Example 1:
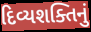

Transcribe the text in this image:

દિવ્યશક્તિનું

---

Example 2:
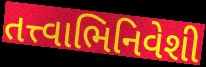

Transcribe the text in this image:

તત્ત્વાભિનિવેશી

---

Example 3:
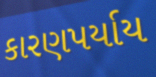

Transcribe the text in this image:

કારણપર્યાય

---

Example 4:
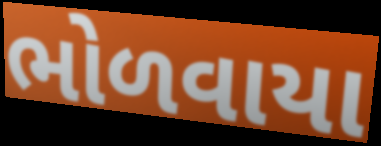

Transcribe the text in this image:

ભોળવાયા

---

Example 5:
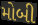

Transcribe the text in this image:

મોબી